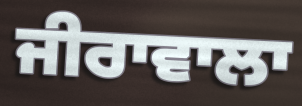
ਜੀਰਾਵਾਲਾ